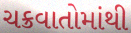
ચક્રવાતોમાંથી